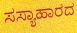
ಸಸ್ಯಾಹಾರದ